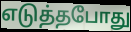
எடுத்தபோது